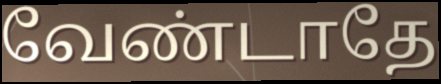
வேண்டாதே